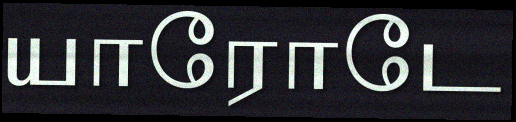
யாரோடே